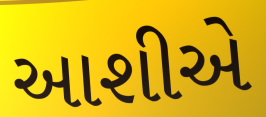
આશીએ